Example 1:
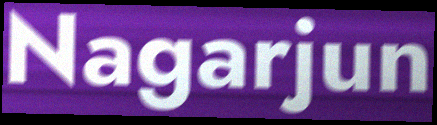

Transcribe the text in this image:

Nagarjun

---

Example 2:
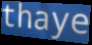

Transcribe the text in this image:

thaye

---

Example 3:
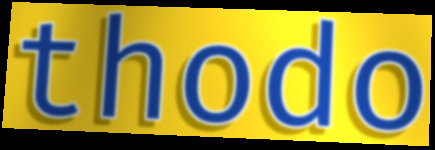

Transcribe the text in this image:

thodo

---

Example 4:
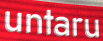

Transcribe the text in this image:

untaru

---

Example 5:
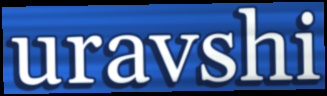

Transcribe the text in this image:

uravshi